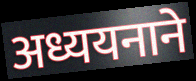
अध्ययनाने